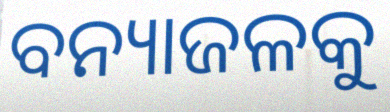
ବନ୍ୟାଜଳକୁ